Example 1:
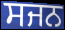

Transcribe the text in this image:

ਸਜਨ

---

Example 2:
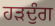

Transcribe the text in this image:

ਹੜਦੁੰਗ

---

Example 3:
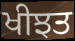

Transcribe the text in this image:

ਖੀਝਤ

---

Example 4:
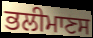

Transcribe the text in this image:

ਭਲੀਮਾਣਸ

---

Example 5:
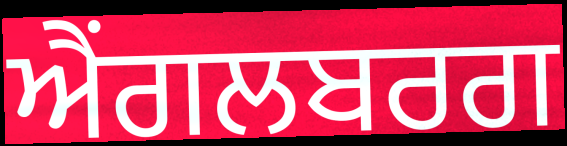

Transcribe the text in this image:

ਐਂਗਲਬਰਗ